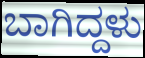
ಬಾಗಿದ್ದಳು